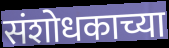
संशोधकाच्या